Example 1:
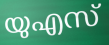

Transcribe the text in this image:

യുഎസ്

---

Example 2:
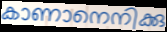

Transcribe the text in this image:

കാണാനെനിക്കു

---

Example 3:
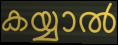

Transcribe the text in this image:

കയ്യാൽ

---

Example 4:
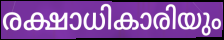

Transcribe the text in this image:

രക്ഷാധികാരിയും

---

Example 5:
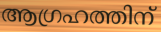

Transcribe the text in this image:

ആഗ്രഹത്തിന്